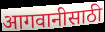
आगवानीसाठी